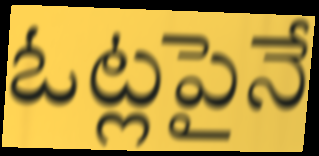
ఓట్లపైనే